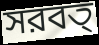
সরবত্